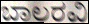
ಬಾಲರವಿ